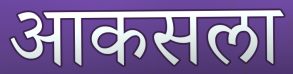
आकसला